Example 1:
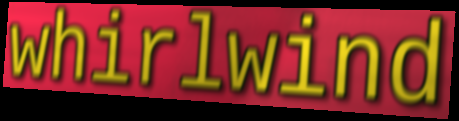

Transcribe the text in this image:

whirlwind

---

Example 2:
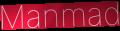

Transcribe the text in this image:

Manmad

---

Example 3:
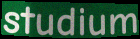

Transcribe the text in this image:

studium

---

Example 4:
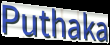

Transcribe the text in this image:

Puthaka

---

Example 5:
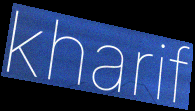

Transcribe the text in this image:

kharif